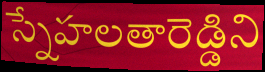
స్నేహలతారెడ్డిని